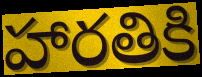
హారతికి